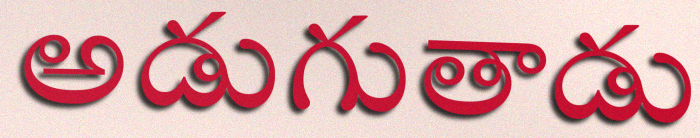
అడుగుతాడు